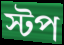
স্টপ